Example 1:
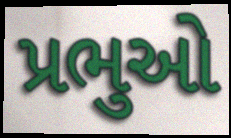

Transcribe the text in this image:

પ્રભુઓ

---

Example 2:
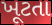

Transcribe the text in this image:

ખૂટતા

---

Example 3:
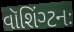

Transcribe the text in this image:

વૉશિંગ્ટનઃ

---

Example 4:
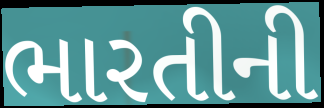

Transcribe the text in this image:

ભારતીની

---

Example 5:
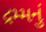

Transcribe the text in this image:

દ્રમ્મનું